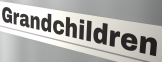
Grandchildren